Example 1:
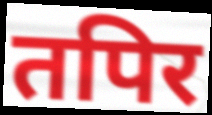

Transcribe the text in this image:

तपिर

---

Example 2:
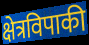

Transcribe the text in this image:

क्षेत्रविपाकी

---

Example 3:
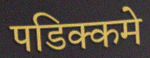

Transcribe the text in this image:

पडिक्कमे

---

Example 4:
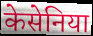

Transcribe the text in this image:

केसेनिया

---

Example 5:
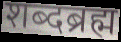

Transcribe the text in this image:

शब्दब्रह्म